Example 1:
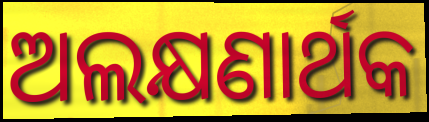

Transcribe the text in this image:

ଅଲକ୍ଷଣାର୍ଥକ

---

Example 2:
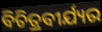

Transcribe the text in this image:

ବିଚିତ୍ରବୀର୍ଯ୍ୟର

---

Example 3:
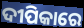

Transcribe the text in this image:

ଦୀପିକାରେ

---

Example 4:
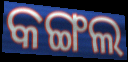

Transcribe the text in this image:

କଙ୍ଗଲ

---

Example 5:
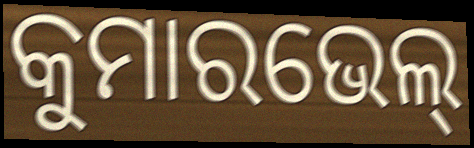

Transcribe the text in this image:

କୁମାରଭେଲ୍